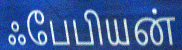
ஃபேபியன்